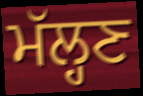
ਮੱਲ੍ਹਣ